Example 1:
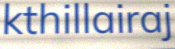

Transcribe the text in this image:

kthillairaj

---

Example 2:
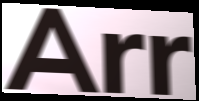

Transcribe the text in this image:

Arr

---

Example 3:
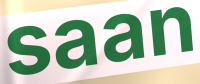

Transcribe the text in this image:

saan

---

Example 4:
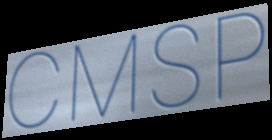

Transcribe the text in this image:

CMSP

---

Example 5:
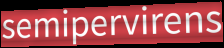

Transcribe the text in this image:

semipervirens